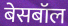
बेसबॉल